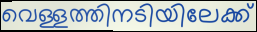
വെള്ളത്തിനടിയിലേക്ക്